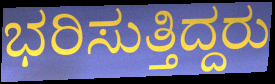
ಭರಿಸುತ್ತಿದ್ದರು